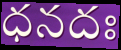
ధనదః